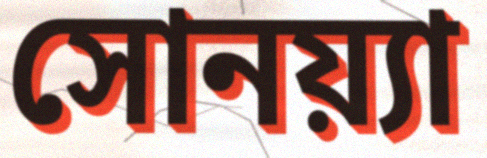
সোনয়্যা